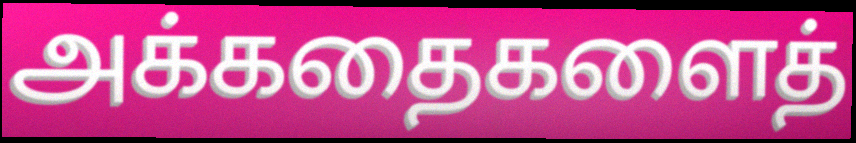
அக்கதைகளைத்